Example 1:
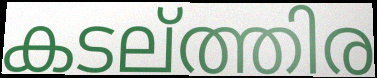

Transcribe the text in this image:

കടല്ത്തിര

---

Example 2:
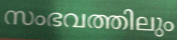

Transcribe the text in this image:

സംഭവത്തിലും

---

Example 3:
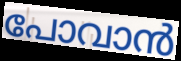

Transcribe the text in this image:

പോവാൻ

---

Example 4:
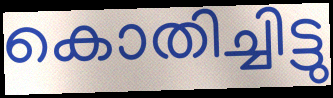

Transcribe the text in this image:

കൊതിച്ചിട്ടു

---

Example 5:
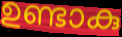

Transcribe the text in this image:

ഉണ്ടാകു